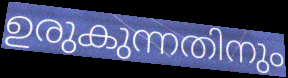
ഉരുകുന്നതിനും